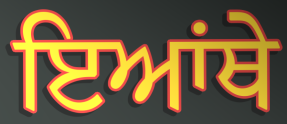
ਇਆਂਥੇ